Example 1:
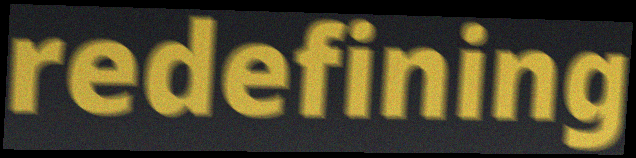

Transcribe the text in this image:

redefining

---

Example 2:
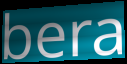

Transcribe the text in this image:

bera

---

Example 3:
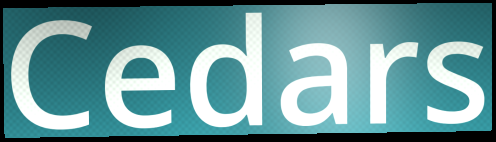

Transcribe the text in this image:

Cedars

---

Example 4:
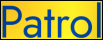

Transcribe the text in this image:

Patrol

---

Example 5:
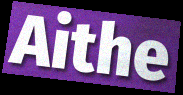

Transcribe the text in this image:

Aithe